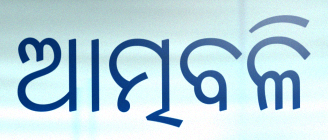
ଆତ୍ମବଳି